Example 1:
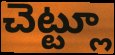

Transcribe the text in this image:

చెట్ట్లూ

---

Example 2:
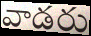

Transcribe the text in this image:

వాడరు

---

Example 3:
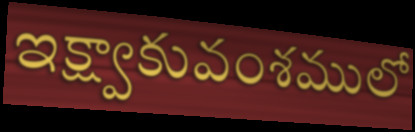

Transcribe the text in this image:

ఇక్ష్వాకువంశములో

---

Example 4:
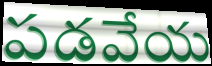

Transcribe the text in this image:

పడవేయ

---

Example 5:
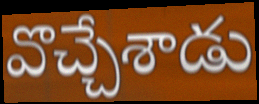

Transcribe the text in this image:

వొచ్చేశాడు